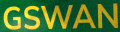
GSWAN